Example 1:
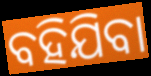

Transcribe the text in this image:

ବହିଯିବା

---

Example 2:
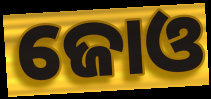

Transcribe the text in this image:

ଜୋଓ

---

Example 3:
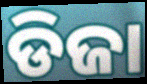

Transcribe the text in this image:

ଡିଜା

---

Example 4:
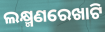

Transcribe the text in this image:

ଲକ୍ଷ୍ମଣରେଖାଟି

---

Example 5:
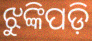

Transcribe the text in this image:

ଝୁଙ୍କିପଡ଼ି